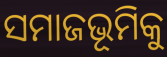
ସମାଜଭୂମିକୁ